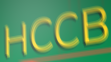
HCCB